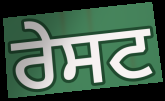
ਰੇਸਟ